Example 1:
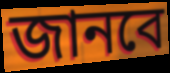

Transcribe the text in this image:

জানবে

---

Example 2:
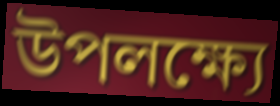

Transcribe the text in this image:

উপলক্ষ্যে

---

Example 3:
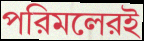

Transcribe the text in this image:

পরিমলেরই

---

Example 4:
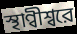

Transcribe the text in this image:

স্থাণ্বীশ্বরে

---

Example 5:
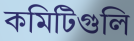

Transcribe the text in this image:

কমিটিগুলি